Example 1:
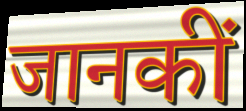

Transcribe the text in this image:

जानकीं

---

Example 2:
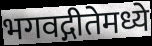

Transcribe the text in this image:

भगवद्गीतेमध्ये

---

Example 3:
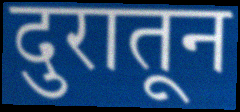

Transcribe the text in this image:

दुरातून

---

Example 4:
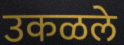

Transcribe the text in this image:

उकळले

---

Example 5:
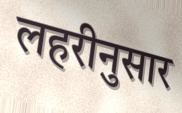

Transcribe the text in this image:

लहरीनुसार